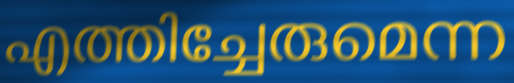
എത്തിച്ചേരുമെന്ന